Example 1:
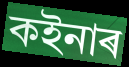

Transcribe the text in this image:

কইনাৰ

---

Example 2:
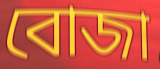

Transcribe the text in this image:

বোজা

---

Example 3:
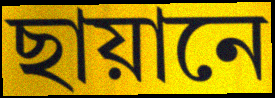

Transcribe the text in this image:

ছায়ানে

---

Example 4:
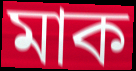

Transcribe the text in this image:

মাক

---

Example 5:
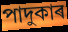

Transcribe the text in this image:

পাদুকাৰ